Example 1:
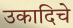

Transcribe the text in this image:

उकादिचे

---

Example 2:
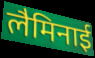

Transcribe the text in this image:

लैमिनाई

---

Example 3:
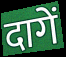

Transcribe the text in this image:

दागें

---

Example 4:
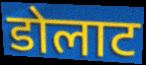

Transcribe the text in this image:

डोलाट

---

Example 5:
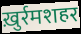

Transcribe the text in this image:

ख़ुर्रमशहर